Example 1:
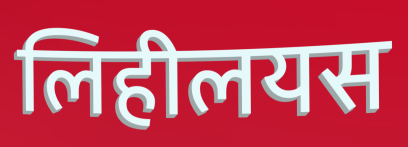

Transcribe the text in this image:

लिहीलयस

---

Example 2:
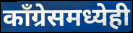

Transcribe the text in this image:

काँग्रेसमध्येही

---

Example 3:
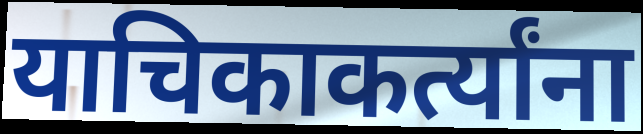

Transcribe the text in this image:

याचिकाकर्त्यांना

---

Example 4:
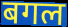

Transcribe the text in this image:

बगल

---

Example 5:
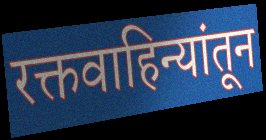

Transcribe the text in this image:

रक्तवाहिन्यांतून